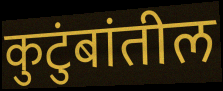
कुटुंबांतील